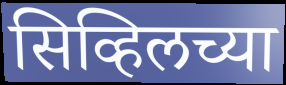
सिव्हिलच्या